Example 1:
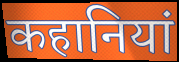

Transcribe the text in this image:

कहानियां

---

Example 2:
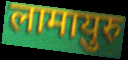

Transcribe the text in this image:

लामायुरु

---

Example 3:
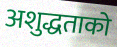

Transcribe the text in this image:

अशुद्धताको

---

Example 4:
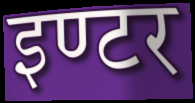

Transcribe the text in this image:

इण्टर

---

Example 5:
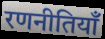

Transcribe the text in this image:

रणनीतियाँ